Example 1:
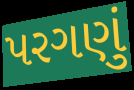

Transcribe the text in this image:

પરગણું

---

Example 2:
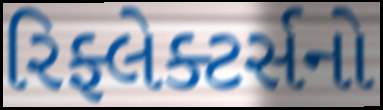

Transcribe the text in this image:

રિફ્લેક્ટર્સનો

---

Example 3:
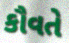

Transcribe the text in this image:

કૌવતે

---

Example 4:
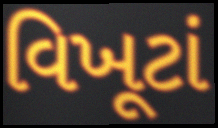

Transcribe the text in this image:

વિખૂટાં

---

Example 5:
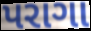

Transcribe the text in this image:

પરાગા